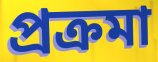
প্রক্রমা